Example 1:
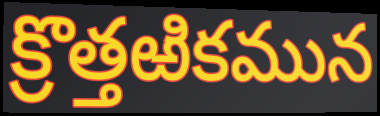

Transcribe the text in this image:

క్రొత్తఱికమున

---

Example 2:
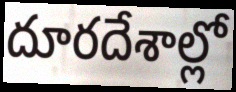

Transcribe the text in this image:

దూరదేశాల్లో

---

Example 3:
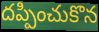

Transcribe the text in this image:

దప్పించుకొన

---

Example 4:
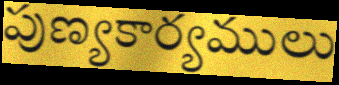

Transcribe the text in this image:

పుణ్యకార్యములు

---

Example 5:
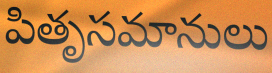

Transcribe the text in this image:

పితృసమానులు